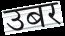
उबर